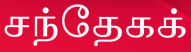
சந்தேகக்